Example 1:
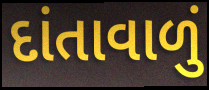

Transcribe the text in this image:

દાંતાવાળું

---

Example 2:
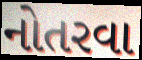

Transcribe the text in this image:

નોતરવા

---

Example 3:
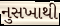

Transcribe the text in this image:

નુસખાથી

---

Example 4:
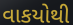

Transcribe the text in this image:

વાકયોથી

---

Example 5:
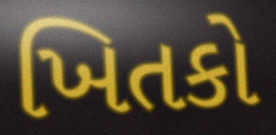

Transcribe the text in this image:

ખિતકો